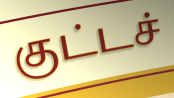
குட்டச்